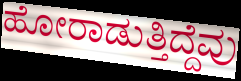
ಹೋರಾಡುತ್ತಿದ್ದೆವು